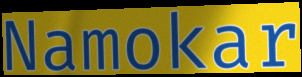
Namokar